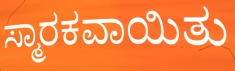
ಸ್ಮಾರಕವಾಯಿತು